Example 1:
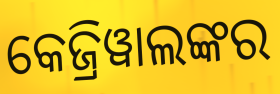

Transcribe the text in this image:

କେଜ୍ରିୱାଲଙ୍କର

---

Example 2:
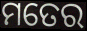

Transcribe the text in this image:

ମତେର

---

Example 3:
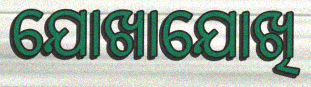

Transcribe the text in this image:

ଯୋଖାଯୋଖି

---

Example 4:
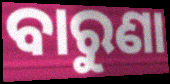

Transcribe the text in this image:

ବାରୁଣା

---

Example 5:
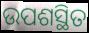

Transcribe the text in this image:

ଉପଶସ୍ଥିତ